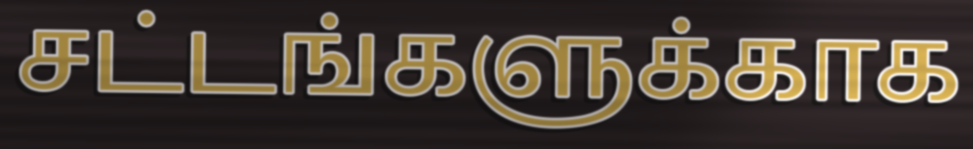
சட்டங்களுக்காக